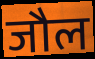
जौल